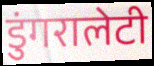
डुंगरालेटी